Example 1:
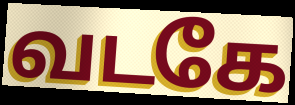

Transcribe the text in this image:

வடகே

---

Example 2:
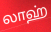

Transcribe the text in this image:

லாஹ்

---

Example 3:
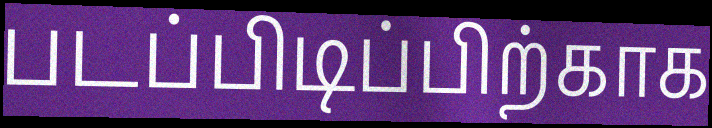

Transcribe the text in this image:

படப்பிடிப்பிற்காக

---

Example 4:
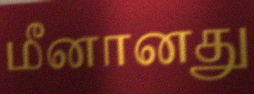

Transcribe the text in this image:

மீனானது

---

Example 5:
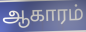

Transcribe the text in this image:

ஆகாரம்